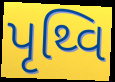
પૃથ્વિ